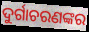
ଦୁର୍ଗାଚରଣଙ୍କର